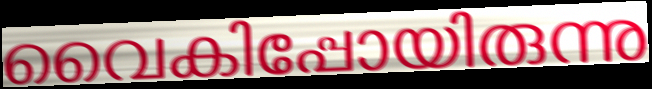
വൈകിപ്പോയിരുന്നു